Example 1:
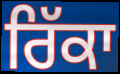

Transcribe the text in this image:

ਰਿੱਕਾ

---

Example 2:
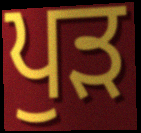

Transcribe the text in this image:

ਪੁੜ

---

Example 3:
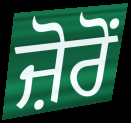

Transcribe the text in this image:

ਜ਼ੋਰੋਂ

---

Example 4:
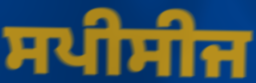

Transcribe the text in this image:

ਸਪੀਸੀਜ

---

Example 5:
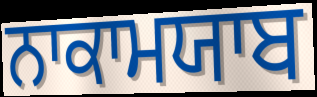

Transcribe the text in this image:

ਨਾਕਾਮਯਾਬ